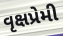
વૃક્ષપ્રેમી